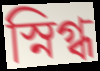
স্নিগ্ধ